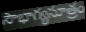
సౌభాగ్యసూత్రం